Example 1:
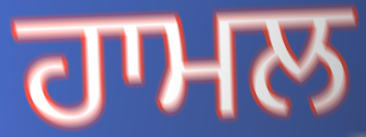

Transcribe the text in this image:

ਹਾਮਲ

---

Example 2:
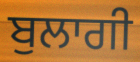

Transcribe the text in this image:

ਬੁਲਾਗੀ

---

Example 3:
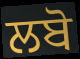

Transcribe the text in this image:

ਲਬੋ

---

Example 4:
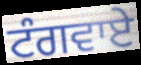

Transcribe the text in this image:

ਟੰਗਵਾਏ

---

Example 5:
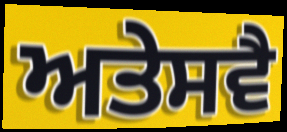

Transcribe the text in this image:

ਅਤੇਸਵੈ